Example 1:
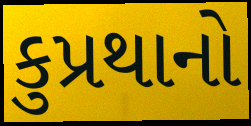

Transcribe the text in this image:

કુપ્રથાનો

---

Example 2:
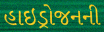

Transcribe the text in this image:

હાઇડ્રોજનની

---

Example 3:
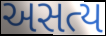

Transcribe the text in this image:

અસત્ય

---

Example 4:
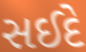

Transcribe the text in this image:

સઈદે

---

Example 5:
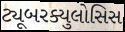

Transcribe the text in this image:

ટ્યૂબરક્યુલોસિસ